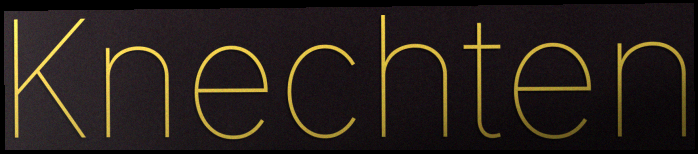
Knechten